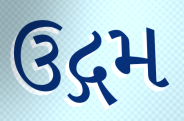
ઉદ્ગમ